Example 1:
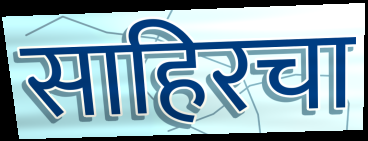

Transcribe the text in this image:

साहिरचा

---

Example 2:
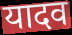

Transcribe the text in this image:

यादव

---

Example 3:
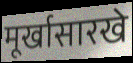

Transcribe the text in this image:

मूर्खासारखे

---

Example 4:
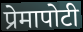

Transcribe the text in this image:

प्रेमापोटी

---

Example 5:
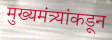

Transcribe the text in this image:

मुख्यमंत्र्यांकडून